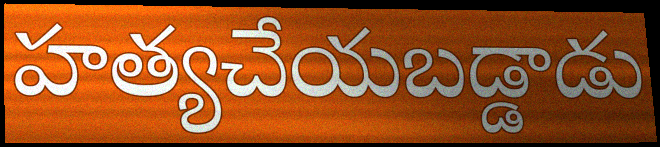
హత్యచేయబడ్డాడు